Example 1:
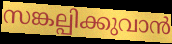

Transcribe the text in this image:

സങ്കല്പിക്കുവാൻ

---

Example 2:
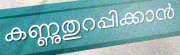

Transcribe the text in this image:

കണ്ണുതുറപ്പിക്കാൻ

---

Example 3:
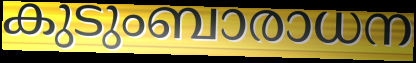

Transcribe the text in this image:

കുടുംബാരാധന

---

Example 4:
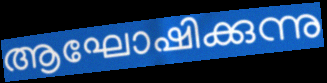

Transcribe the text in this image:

ആഘോഷിക്കുന്നു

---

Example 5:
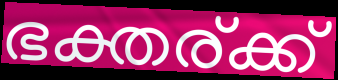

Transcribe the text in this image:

ഭക്തര്ക്ക്